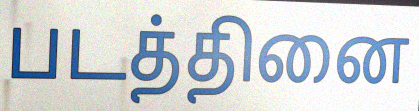
படத்தினை